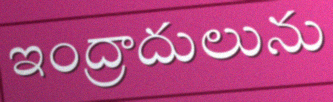
ఇంద్రాదులును